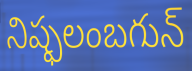
నిష్ఫలంబగున్